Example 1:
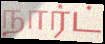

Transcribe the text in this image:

நார்ட்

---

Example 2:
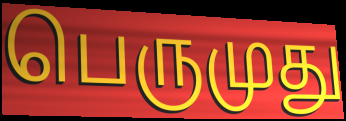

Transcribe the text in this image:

பெருமுது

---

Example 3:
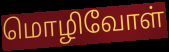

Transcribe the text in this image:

மொழிவோள்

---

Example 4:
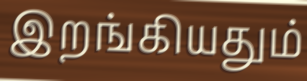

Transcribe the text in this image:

இறங்கியதும்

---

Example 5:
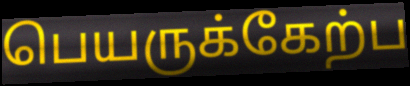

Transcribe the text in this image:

பெயருக்கேற்ப